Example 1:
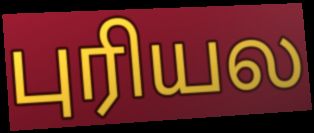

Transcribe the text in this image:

புரியல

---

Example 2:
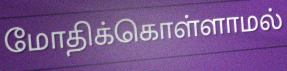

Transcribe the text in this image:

மோதிக்கொள்ளாமல்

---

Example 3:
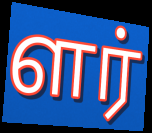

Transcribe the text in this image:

ளர்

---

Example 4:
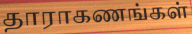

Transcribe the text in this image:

தாராகணங்கள்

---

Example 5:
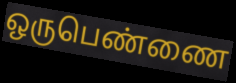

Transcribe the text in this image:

ஒருபெண்ணை